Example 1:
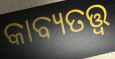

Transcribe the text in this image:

କାବ୍ୟତତ୍ତ୍ୱ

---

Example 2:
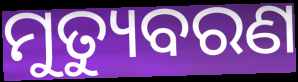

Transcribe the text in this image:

ମୁତ୍ୟୁବରଣ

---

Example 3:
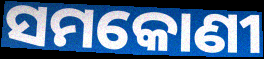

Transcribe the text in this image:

ସମକୋଣୀ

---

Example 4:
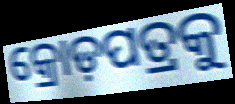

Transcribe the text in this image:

କ୍ରୋଡ଼ପତ୍ରକୁ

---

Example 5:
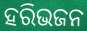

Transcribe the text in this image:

ହରିଭଜନ